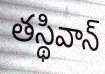
తస్థివాన్